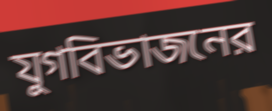
যুগবিভাজনের